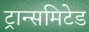
ट्रान्समिटेड